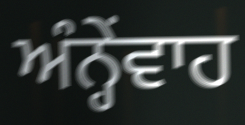
ਅੰਨ੍ਹੇਂਵਾਹ